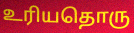
உரியதொரு